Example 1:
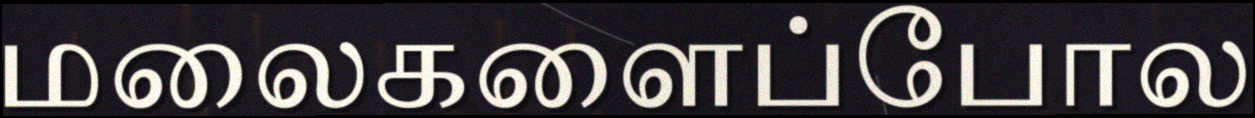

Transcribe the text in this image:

மலைகளைப்போல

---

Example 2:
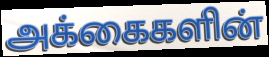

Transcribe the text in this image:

அக்கைகளின்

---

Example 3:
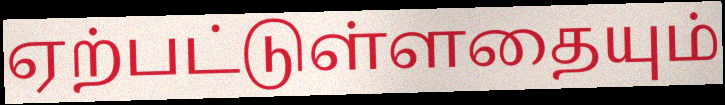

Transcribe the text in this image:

ஏற்பட்டுள்ளதையும்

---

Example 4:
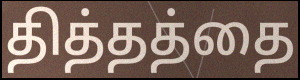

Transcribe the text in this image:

தித்தத்தை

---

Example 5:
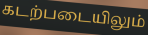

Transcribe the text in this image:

கடற்படையிலும்